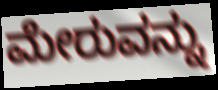
ಮೇರುವನ್ನು